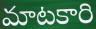
మాటకారి